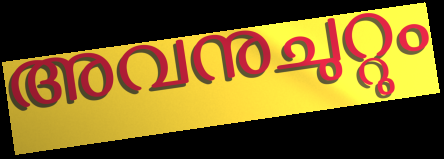
അവനുചുറ്റും